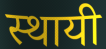
स्थायी